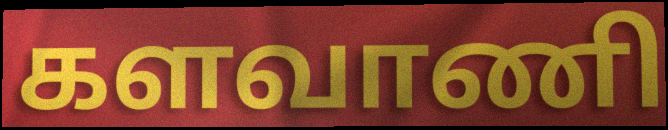
களவாணி